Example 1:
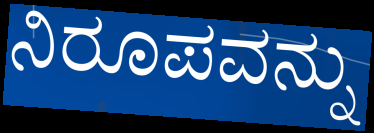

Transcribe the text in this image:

ನಿರೂಪವನ್ನು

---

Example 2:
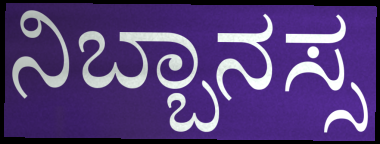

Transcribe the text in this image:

ನಿಬ್ಬಾನಸ್ಸ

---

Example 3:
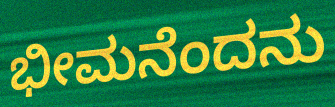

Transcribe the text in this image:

ಭೀಮನೆಂದನು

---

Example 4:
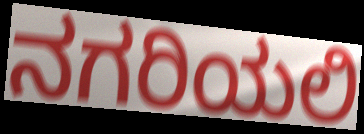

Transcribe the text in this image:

ನಗರಿಯಲಿ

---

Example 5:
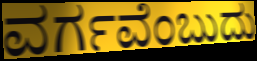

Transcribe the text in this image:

ವರ್ಗವೆಂಬುದು